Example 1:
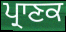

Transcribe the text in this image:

ਪ੍ਰਾਣਕ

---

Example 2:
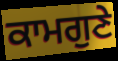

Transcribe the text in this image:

ਕਾਮਗੁਣੇ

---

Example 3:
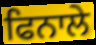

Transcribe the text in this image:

ਫਿਨਾਲੇ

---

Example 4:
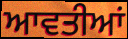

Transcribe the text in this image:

ਆਵਤੀਆਂ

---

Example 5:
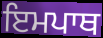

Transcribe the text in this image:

ਇਮਪਾਥ